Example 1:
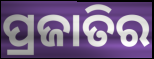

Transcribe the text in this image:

ପ୍ରଜାତିର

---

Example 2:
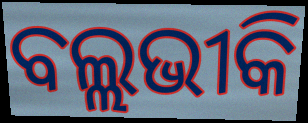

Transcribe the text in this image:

ବଲ୍ଲଭୀକି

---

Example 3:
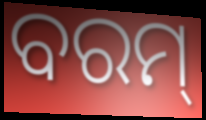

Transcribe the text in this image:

ବରମ୍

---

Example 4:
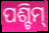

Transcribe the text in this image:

ପଶ୍ଚିମ୍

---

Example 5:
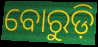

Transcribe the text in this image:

ବୋରୁଡ଼ି